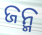
ଜନ୍ମ